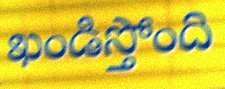
ఖండిస్తోంది